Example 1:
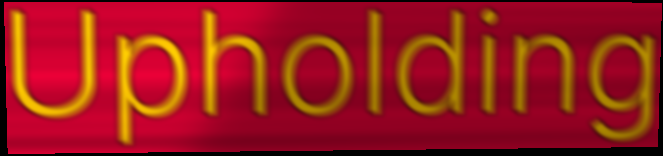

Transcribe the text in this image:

Upholding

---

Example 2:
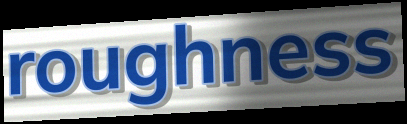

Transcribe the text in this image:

roughness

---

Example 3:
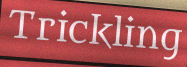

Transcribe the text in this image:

Trickling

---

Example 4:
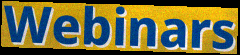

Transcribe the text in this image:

Webinars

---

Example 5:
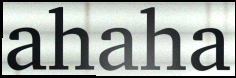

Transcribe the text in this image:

ahaha